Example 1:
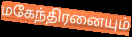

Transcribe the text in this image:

மகேந்திரனையும்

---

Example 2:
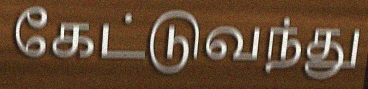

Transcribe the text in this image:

கேட்டுவந்து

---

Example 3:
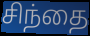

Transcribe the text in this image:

சிந்தை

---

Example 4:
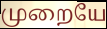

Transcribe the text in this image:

முறையே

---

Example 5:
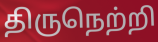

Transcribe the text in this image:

திருநெற்றி